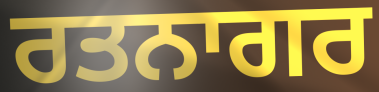
ਰਤਨਾਗਰ